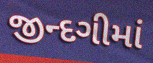
જીન્દગીમાં